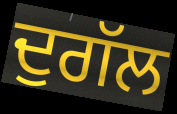
ਦੁਗੱਲ